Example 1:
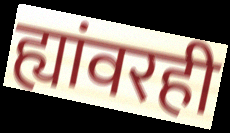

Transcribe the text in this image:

ह्यांवरही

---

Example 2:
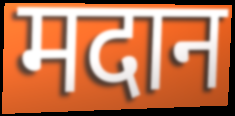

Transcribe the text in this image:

मदान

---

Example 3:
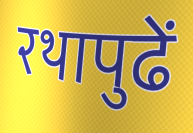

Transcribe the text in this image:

रथापुढें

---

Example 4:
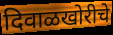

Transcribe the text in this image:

दिवाळखोरीचे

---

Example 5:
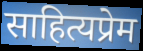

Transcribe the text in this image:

साहित्यप्रेम